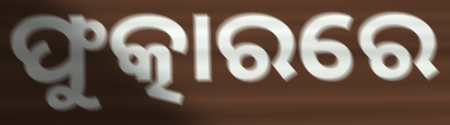
ଫୁତ୍କାରରେ